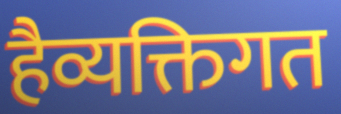
हैव्यक्तिगत